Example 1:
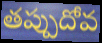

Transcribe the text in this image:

తప్పుదోవ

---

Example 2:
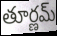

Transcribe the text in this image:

తూర్ణమ్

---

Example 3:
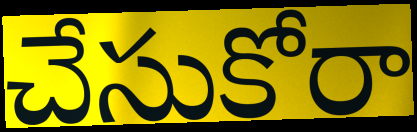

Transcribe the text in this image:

చేసుకోరా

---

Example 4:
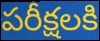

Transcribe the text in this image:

పరీక్షలకి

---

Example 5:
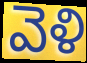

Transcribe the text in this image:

వెళి